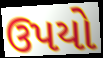
ઉપયો